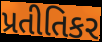
પ્રતીતિકર